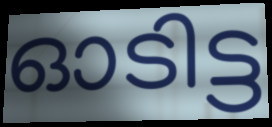
ഓടിട്ട